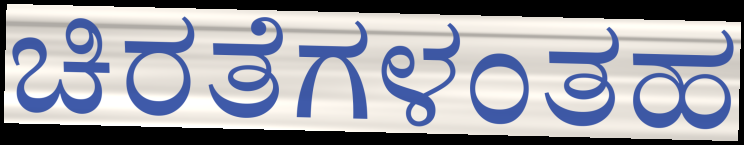
ಚಿರತೆಗಳಂತಹ